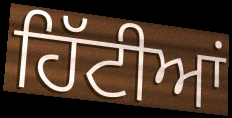
ਹਿੱਟੀਆਂ